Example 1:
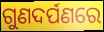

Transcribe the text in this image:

ଗୁଣଦର୍ପଣରେ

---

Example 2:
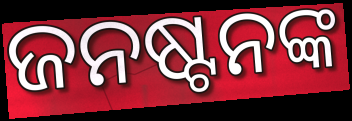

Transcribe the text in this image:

ଜନଷ୍ଟନଙ୍କ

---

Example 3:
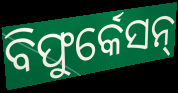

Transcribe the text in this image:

ବିଫୁର୍କେସନ୍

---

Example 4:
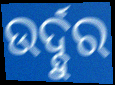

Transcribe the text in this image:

ଉର୍ଦ୍ଦୁର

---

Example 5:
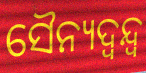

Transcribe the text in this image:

ସୈନ୍ୟଦ୍ୱନ୍ଦ୍ୱ